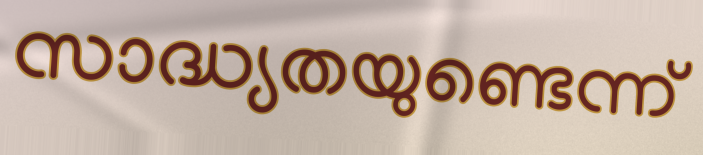
സാദ്ധ്യതയുണ്ടെന്ന്